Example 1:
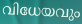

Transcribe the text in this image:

വിധേയവും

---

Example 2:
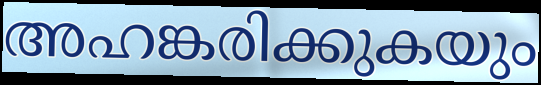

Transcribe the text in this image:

അഹങ്കരിക്കുകയും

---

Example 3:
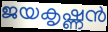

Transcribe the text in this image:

ജയകൃഷ്ണൻ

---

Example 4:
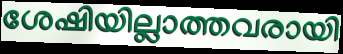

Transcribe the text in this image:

ശേഷിയില്ലാത്തവരായി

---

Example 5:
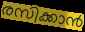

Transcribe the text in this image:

രസിക്കാൻ